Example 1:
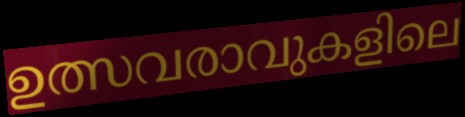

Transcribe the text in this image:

ഉത്സവരാവുകളിലെ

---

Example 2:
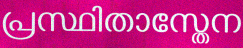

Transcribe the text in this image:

പ്രസ്ഥിതാസ്തേന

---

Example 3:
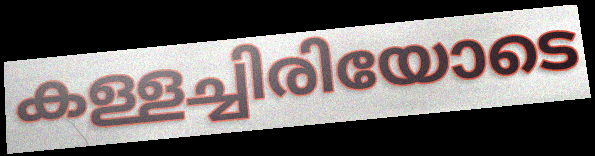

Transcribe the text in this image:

കള്ളച്ചിരിയോടെ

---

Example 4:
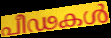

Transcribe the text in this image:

പീഢകൾ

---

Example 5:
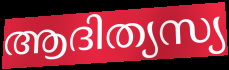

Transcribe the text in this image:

ആദിത്യസ്യ